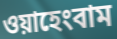
ওয়াহেংবাম